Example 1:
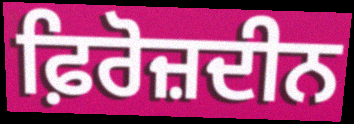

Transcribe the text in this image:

ਫ਼ਿਰੋਜ਼ਦੀਨ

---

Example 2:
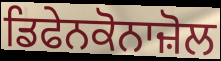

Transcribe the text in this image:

ਡਿਫੇਨਕੋਨਾਜ਼ੋਲ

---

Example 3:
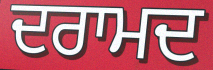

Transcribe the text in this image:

ਦਰਾਮਦ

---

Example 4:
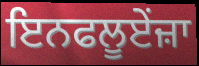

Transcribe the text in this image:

ਇਨਫਲੂਏਂਜ਼ਾ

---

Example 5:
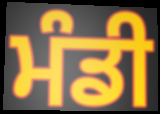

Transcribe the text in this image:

ਮੰਡੀ